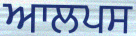
ਆਲਪਸ